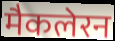
मैकलेरन